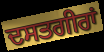
ਦਸਤਗੀਰਾਂ